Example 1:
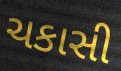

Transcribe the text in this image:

ચકાસી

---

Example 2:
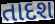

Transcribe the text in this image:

તાદશ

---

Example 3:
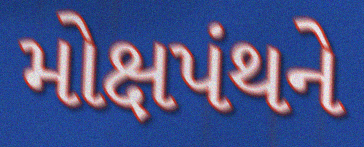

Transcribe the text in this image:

મોક્ષપંથને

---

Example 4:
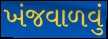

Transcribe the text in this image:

ખંજવાળવું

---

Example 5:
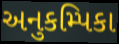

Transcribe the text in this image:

અનુકમ્પિકા